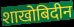
शाखोबिदीन